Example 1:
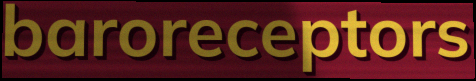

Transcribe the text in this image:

baroreceptors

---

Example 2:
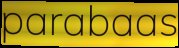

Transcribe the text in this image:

parabaas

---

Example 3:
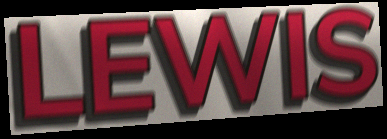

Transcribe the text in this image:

LEWIS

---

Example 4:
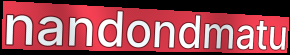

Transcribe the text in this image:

nandondmatu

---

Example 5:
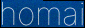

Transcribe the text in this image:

homai